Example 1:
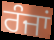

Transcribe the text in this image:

ਰੰਜਾਂ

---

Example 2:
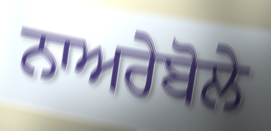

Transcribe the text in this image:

ਨਾਅਰੇਬੋਲੇ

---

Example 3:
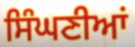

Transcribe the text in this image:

ਸਿੰਘਣੀਆਂ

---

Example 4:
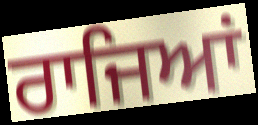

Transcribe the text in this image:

ਰਾਜਿਆਂ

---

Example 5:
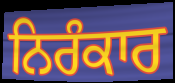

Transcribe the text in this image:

ਨਿਰੰਕਾਰ